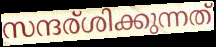
സന്ദര്ശിക്കുന്നത്